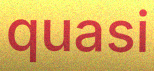
quasi